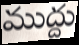
ముద్దు